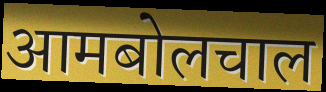
आमबोलचाल